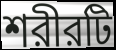
শরীরটি